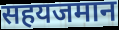
सहयजमान